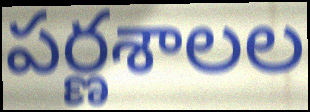
పర్ణశాలల